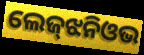
ଲେଜ୍‌ଝନିଓଭ